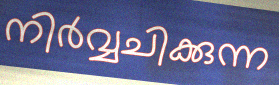
നിർവ്വചിക്കുന്ന